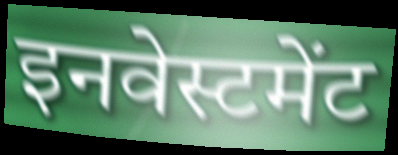
इनवेस्टमेंट